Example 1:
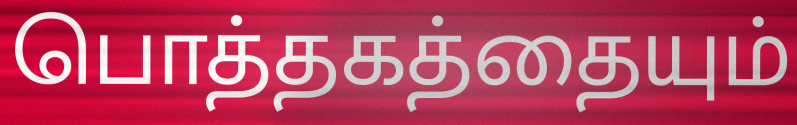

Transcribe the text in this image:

பொத்தகத்தையும்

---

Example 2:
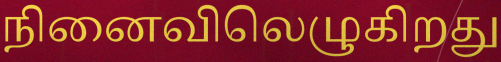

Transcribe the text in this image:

நினைவிலெழுகிறது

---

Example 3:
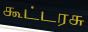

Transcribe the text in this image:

கூட்டரசு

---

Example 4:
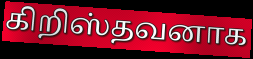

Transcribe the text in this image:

கிறிஸ்தவனாக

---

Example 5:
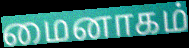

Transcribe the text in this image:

மைனாகம்